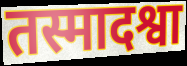
तस्मादश्वा